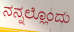
ನನ್ನಲ್ಲೊಂದು